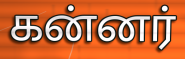
கன்னர்